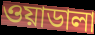
ওয়াডালা